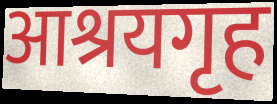
आश्रयगृह